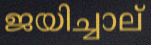
ജയിച്ചാല്